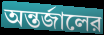
অন্তর্জালের